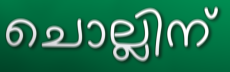
ചൊല്ലിന്